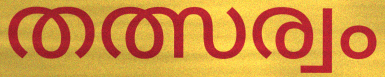
തത്സര്വം